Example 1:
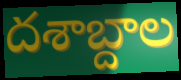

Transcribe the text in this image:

దశాబ్దాల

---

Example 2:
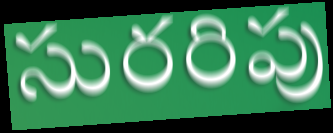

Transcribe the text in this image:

సురరిపు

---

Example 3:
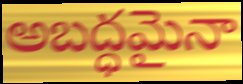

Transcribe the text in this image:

అబద్ధమైనా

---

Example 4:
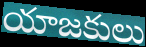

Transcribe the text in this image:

యాజకులు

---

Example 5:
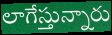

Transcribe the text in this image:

లాగేస్తున్నారు